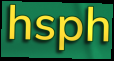
hsph